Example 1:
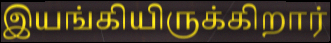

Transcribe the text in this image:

இயங்கியிருக்கிறார்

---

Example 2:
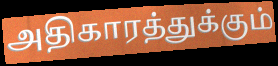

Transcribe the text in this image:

அதிகாரத்துக்கும்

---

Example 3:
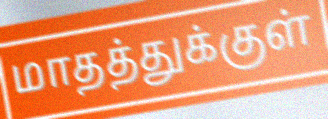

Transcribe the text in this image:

மாதத்துக்குள்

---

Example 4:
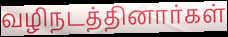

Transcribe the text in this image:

வழிநடத்தினார்கள்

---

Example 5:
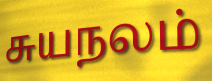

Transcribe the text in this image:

சுயநலம்